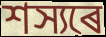
শস্যৰে